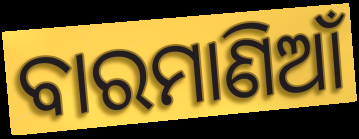
ବାରମାଣିଆଁ